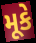
મૂકે